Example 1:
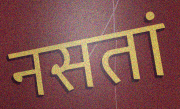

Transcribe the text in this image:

नसतां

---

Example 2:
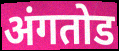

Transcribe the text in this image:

अंगतोड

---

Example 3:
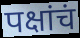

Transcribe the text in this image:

पक्षांचं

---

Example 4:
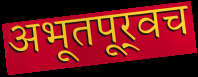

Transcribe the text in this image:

अभूतपूर्वच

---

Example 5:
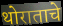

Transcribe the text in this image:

थोराताचे